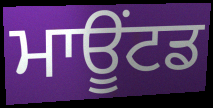
ਮਾਊਂਟਡ